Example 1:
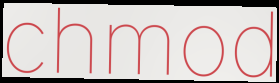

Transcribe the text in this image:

chmod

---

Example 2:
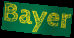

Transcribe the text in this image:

Bayer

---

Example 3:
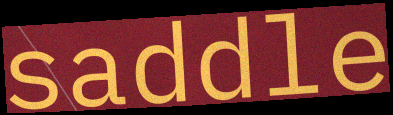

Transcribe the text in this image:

saddle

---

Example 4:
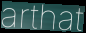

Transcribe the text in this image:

arthat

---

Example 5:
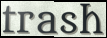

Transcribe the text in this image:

trash